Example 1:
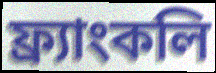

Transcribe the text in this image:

ফ্র্যাংকলি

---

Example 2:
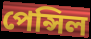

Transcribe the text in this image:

পেন্সিল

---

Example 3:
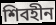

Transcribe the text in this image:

শিবহীন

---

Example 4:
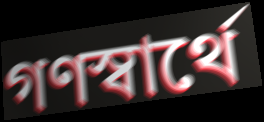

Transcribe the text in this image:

গণস্বার্থে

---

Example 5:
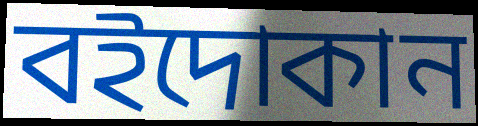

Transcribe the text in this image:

বইদোকান